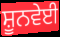
ਸ਼ੂਨਵੇਈ